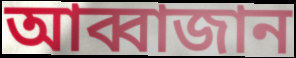
আব্বাজান